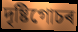
দৃষ্টিগোচৰ